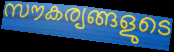
സൗകര്യങ്ങളുടെ